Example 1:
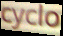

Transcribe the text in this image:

cyclo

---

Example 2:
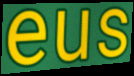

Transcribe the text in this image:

eus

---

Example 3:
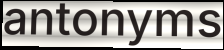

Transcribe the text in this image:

antonyms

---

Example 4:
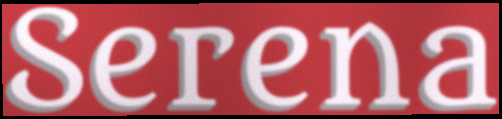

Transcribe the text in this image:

Serena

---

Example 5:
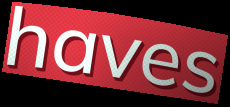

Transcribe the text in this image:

haves